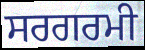
ਸਰਗਰਮੀ